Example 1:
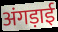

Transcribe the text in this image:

अंगड़ाई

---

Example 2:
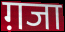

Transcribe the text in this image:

ग़जा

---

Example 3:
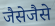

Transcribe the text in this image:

जैसेजैसे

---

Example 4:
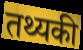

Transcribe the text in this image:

तथ्यकी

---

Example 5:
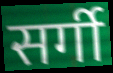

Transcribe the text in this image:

सर्गी